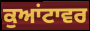
ਕੁਆਂਟਾਵਰ